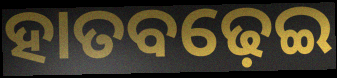
ହାତବଢ଼େଇ